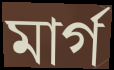
মাৰ্গ